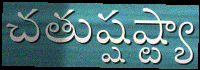
చతుష్షష్ట్యా